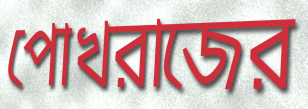
পোখরাজের